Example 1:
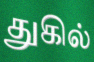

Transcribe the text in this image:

துகில்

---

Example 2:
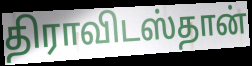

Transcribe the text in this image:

திராவிடஸ்தான்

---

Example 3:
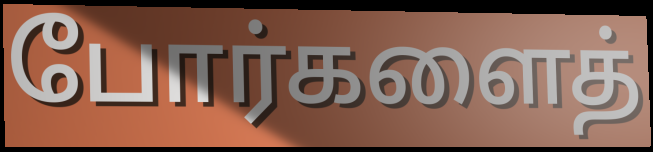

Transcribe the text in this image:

போர்களைத்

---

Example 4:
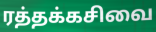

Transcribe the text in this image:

ரத்தக்கசிவை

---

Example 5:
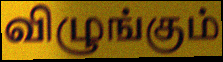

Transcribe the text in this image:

விழுங்கும்